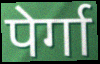
पेर्गा